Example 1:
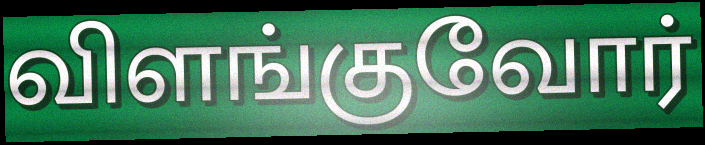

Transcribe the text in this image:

விளங்குவோர்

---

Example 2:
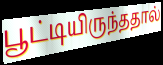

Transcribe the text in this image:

பூட்டியிருந்ததால்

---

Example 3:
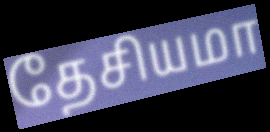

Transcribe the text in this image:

தேசியமா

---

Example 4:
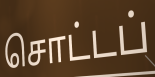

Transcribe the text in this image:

சொட்டப்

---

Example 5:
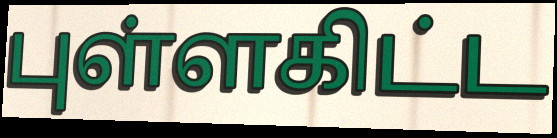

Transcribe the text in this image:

புள்ளகிட்ட